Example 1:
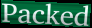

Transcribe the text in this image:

Packed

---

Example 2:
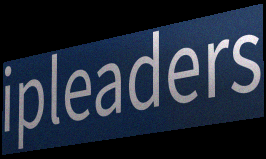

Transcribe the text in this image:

ipleaders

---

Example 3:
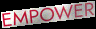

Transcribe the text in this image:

EMPOWER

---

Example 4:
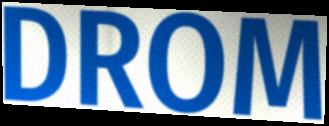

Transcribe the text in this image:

DROM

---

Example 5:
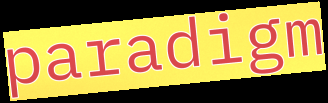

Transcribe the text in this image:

paradigm